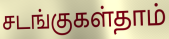
சடங்குகள்தாம்